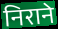
निराने